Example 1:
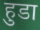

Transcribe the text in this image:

हुडा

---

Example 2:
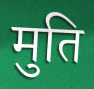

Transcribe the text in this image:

मुति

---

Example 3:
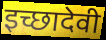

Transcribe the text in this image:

इच्छादेवी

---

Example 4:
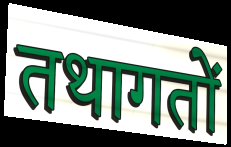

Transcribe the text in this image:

तथागतों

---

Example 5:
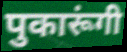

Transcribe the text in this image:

पुकारूंगी